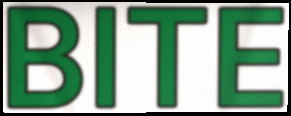
BITE